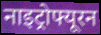
नाइट्रोफ्यूरन